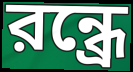
রন্ধ্রে